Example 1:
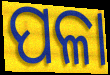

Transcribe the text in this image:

ପଳା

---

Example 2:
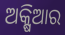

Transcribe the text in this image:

ଅକ୍ଷିଆର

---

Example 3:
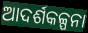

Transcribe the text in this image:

ଆଦର୍ଶକଳ୍ପନା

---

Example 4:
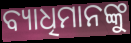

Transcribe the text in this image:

ବ୍ୟାଧିମାନଙ୍କୁ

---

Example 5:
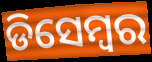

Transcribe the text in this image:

ଡିସେମ୍ୱର